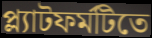
প্ল্যাটফর্মটিতে